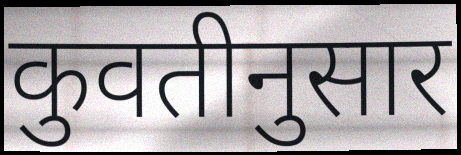
कुवतीनुसार